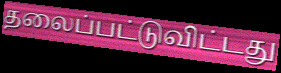
தலைப்பட்டுவிட்டது